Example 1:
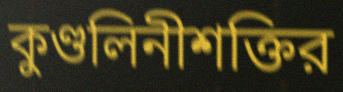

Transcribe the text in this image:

কুণ্ডলিনীশক্তির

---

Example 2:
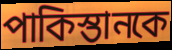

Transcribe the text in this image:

পাকিস্তানকে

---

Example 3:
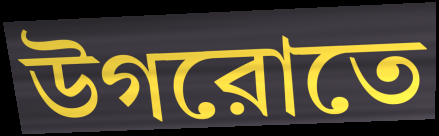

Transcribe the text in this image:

উগরোতে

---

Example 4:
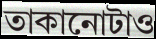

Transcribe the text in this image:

তাকানোটাও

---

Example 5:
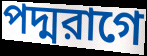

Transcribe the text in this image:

পদ্মরাগে